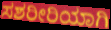
ಸಶರೀರಿಯಾಗಿ